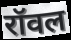
रॉवल